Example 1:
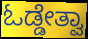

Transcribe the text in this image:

ಓಡ್ಡೇತ್ವಾ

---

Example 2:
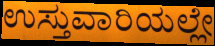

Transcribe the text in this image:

ಉಸ್ತುವಾರಿಯಲ್ಲೇ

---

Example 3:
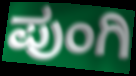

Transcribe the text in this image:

ಪುಂಗಿ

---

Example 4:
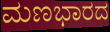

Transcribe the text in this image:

ಮಣಭಾರದ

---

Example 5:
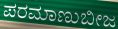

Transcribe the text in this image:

ಪರಮಾಣುಬೀಜ